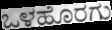
ಒಳಹೊರಗು